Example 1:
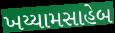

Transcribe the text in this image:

ખય્યામસાહેબ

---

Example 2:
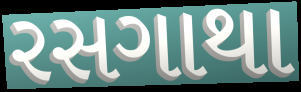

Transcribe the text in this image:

રસગાથા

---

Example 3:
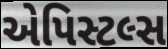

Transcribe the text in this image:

એપિસ્ટલ્સ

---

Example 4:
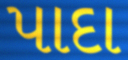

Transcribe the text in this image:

પાદા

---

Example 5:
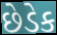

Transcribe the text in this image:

છેડેક